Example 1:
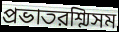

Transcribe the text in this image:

প্রভাতরশ্মিসম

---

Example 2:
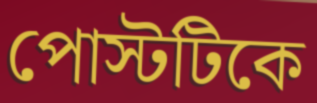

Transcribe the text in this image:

পোস্টটিকে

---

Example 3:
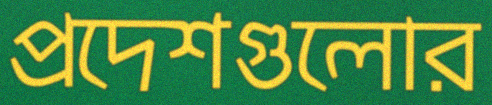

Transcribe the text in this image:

প্রদেশগুলোর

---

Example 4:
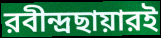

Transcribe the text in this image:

রবীন্দ্রছায়ারই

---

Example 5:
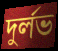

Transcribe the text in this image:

দুর্লভ